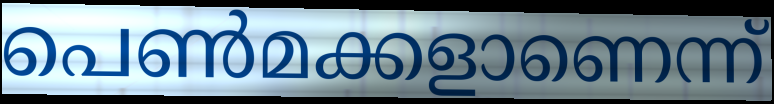
പെൺമക്കളാണെന്ന്